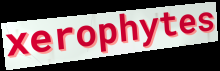
xerophytes